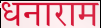
धनाराम